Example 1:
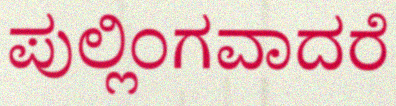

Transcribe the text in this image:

ಪುಲ್ಲಿಂಗವಾದರೆ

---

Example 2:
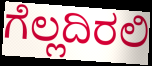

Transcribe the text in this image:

ಗೆಲ್ಲದಿರಲಿ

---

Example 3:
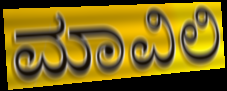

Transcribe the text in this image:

ಮಾವಿಲಿ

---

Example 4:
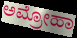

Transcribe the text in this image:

ಅಮ್ರೋಹಾ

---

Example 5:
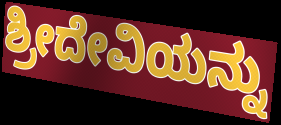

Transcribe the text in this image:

ಶ್ರೀದೇವಿಯನ್ನು